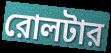
রোলটার